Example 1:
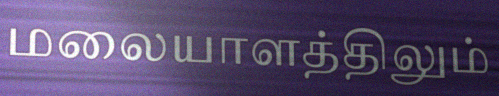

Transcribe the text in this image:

மலையாளத்திலும்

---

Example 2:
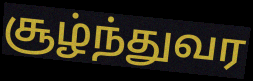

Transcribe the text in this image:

சூழ்ந்துவர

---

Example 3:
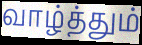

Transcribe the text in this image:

வாழ்த்தும்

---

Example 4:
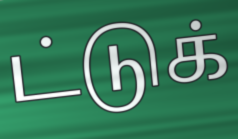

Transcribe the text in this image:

ட்டுக்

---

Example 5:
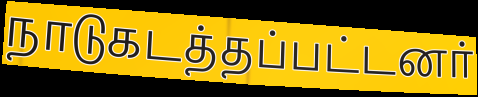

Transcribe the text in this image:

நாடுகடத்தப்பட்டனர்